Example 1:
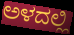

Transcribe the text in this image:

ಅಳದಲ್ಲಿ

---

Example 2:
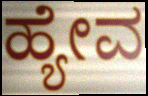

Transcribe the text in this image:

ಹ್ಯೇವ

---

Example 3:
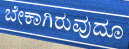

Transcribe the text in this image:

ಬೇಕಾಗಿರುವುದೂ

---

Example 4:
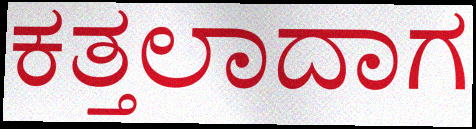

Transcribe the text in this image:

ಕತ್ತಲಾದಾಗ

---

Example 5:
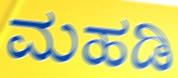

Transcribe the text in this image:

ಮಹಡಿ